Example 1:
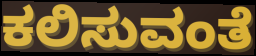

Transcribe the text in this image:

ಕಲಿಸುವಂತೆ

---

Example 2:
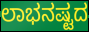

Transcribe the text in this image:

ಲಾಭನಷ್ಟದ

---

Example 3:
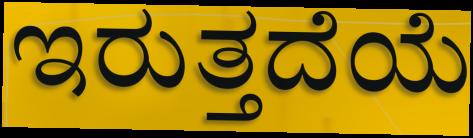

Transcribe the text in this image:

ಇರುತ್ತದೆಯೆ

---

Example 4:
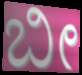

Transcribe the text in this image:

ಬೀ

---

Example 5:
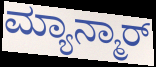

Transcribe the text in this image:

ಮ್ಯಾನ್ಮಾರ್